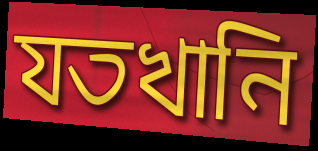
যতখানি